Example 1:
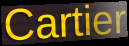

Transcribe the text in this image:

Cartier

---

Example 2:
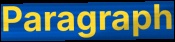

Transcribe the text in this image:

Paragraph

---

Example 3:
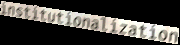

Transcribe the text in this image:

institutionalization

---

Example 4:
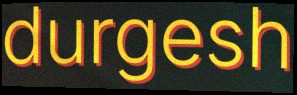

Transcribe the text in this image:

durgesh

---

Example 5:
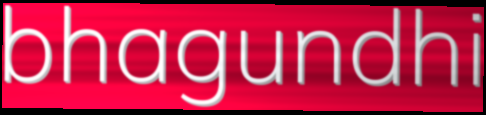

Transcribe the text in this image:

bhagundhi